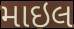
માઇલ